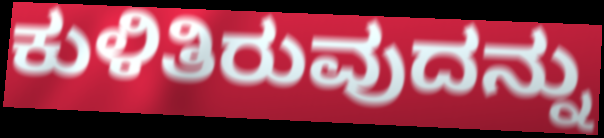
ಕುಳಿತಿರುವುದನ್ನು